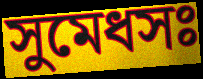
সুমেধসঃ